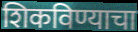
शिकविण्याचा